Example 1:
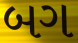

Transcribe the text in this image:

બગ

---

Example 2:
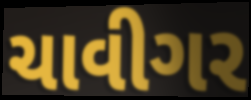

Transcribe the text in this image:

ચાવીગર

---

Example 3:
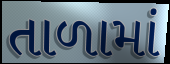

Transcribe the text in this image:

તાળામાં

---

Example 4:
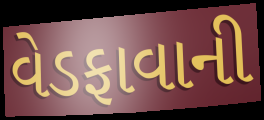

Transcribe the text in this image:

વેડફાવાની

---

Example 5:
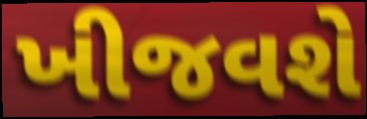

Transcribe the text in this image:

ખીજવશે